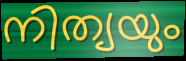
നിത്യയും